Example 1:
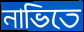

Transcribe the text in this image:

নাভিতে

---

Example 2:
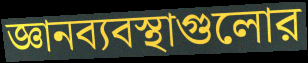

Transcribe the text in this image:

জ্ঞানব্যবস্থাগুলোর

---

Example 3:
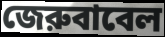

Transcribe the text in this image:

জেরুবাবেল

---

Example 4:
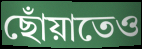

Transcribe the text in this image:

ছোঁয়াতেও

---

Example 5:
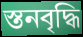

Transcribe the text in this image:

স্তনবৃদ্ধি